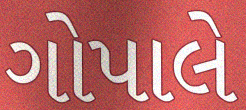
ગોપાલે